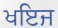
ਖਇਜ